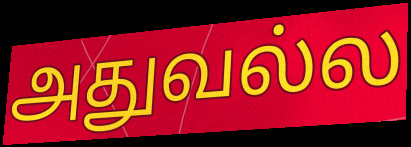
அதுவல்ல